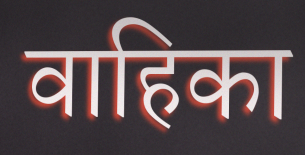
वाहिका